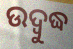
ଉଦ୍ବୁଦ୍ଧ